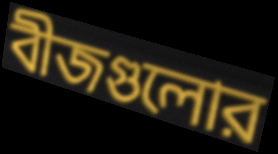
বীজগুলোর